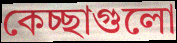
কেচ্ছাগুলো